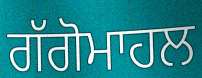
ਗੱਗੋਮਾਹਲ